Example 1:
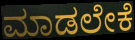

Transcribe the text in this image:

ಮಾಡಲೇಕೆ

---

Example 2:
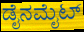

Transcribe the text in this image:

ಡೈನಮೈಟ್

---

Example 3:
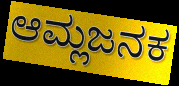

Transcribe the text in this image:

ಆಮ್ಲಜನಕ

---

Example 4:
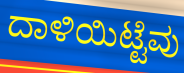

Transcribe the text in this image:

ದಾಳಿಯಿಟ್ಟೆವು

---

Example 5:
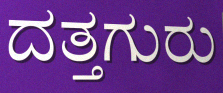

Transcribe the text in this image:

ದತ್ತಗುರು